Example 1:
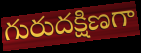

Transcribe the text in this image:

గురుదక్షిణగా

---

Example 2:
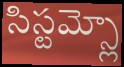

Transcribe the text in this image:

సిస్టమ్స్లో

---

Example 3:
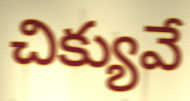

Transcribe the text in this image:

చిక్యువే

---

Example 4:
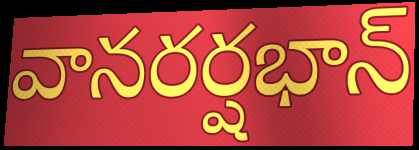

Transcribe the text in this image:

వానరర్షభాన్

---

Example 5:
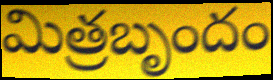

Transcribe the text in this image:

మిత్రబృందం